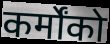
कर्मोंको